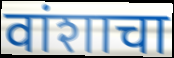
वांशाचा